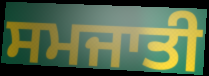
ਸਮਜਾਤੀ